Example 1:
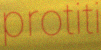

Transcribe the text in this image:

protiti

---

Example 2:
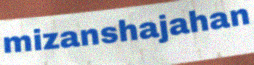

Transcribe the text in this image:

mizanshajahan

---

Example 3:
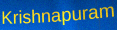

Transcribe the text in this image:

Krishnapuram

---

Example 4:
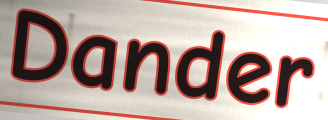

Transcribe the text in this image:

Dander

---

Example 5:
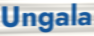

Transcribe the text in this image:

Ungala